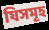
যিসমূহ